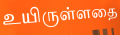
உயிருள்ளதை